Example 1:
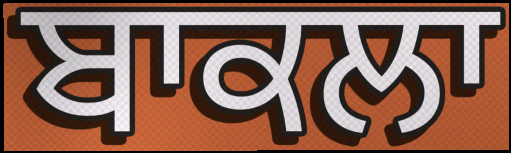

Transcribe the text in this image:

ਬਾਕਲਾ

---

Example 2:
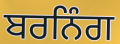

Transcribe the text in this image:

ਬਰਨਿੰਗ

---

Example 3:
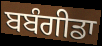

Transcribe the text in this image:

ਬਬੰਗੀਡਾ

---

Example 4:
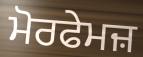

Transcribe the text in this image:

ਮੋਰਫੇਮਜ਼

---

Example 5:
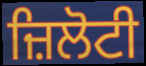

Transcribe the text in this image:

ਜ਼ਿਲੋਟੀ